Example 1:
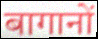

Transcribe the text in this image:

बागानों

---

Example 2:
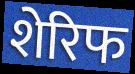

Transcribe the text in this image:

शेरिफ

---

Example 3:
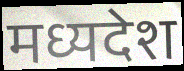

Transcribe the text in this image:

मध्यदेश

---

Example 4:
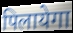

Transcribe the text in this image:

पिलायेगा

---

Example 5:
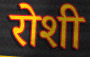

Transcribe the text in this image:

रोशी